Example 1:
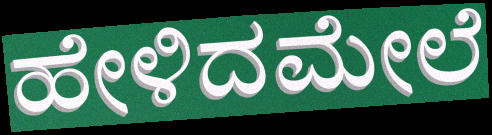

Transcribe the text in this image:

ಹೇಳಿದಮೇಲೆ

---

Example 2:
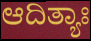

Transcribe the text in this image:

ಆದಿತ್ಯಾಃ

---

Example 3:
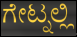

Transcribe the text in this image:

ಗೇಟ್ನಲ್ಲಿ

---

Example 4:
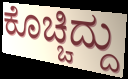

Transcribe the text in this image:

ಕೊಚ್ಚಿದ್ದು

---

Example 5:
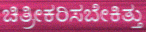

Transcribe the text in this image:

ಚಿತ್ರೀಕರಿಸಬೇಕಿತ್ತು